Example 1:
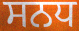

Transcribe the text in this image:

ਸਨਧ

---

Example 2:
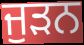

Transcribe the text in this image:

ਜੁਡ਼ਨ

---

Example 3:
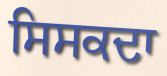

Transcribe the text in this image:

ਸਿਸਕਦਾ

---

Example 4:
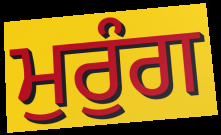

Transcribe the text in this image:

ਮੁਰੁੰਗ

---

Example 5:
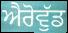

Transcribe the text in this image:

ਐਰੋਵੁੱਡ